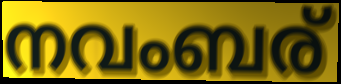
നവംബര്